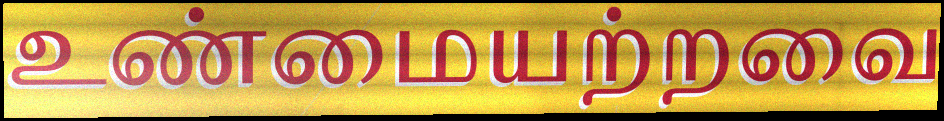
உண்மையற்றவை